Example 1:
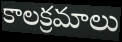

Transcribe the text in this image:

కాలక్రమాలు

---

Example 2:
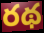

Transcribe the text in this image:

రథ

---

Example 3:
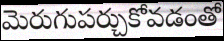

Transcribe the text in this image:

మెరుగుపర్చుకోవడంతో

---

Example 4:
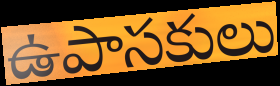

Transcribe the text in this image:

ఉపాసకులు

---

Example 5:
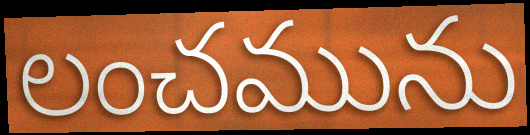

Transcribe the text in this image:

లంచమును